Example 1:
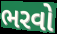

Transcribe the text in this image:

ભરવો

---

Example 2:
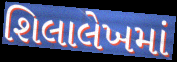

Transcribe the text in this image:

શિલાલેખમાં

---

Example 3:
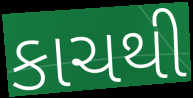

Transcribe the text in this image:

કાચથી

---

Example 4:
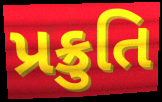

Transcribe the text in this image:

પ્રક્રુતિ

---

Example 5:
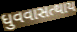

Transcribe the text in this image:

ધુવવાસત્થાય